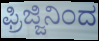
ಫ್ರಿಜ್ಜಿನಿಂದ